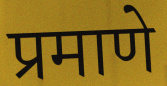
प्रमाणे